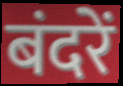
बंदरें